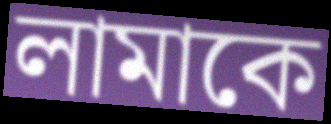
লামাকে